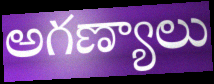
అగణ్యాలు